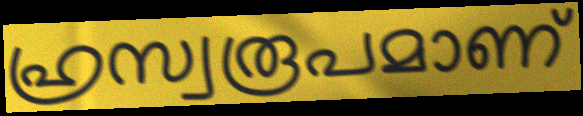
ഹ്രസ്വരൂപമാണ്